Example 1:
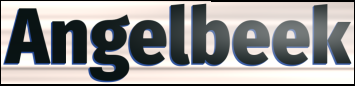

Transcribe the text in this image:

Angelbeek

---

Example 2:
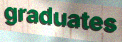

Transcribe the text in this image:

graduates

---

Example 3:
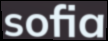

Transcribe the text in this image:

sofia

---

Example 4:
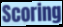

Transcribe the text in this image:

Scoring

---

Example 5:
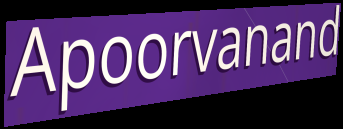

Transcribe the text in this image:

Apoorvanand